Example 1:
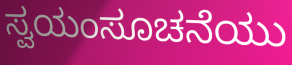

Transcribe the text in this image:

ಸ್ವಯಂಸೂಚನೆಯು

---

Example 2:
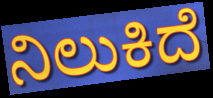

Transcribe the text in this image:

ನಿಲುಕಿದೆ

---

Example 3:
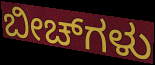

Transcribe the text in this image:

ಬೀಚ್‌ಗಳು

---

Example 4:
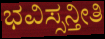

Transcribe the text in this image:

ಭವಿಸ್ಸನ್ತೀತಿ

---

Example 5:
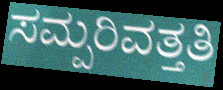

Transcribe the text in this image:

ಸಮ್ಪರಿವತ್ತತಿ